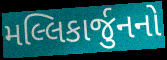
મલ્લિકાર્જુનનો